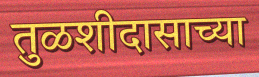
तुळशीदासाच्या